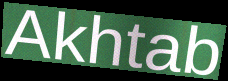
Akhtab